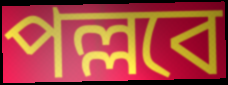
পল্লবে